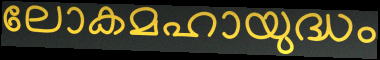
ലോകമഹായുദ്ധം